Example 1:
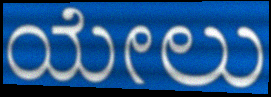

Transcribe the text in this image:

ಯೇಲು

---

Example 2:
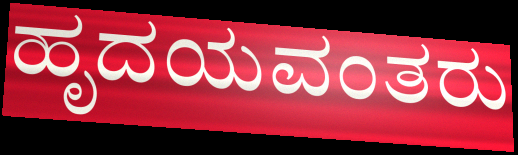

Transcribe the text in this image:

ಹೃದಯವಂತರು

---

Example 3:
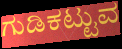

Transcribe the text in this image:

ಗುಡಿಕಟ್ಟುವ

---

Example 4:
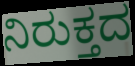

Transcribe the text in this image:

ನಿರುಕ್ತದ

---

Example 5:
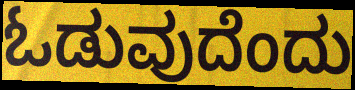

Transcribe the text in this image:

ಓಡುವುದೆಂದು